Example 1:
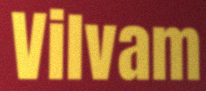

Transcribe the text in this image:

Vilvam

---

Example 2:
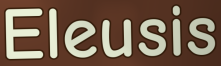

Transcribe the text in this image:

Eleusis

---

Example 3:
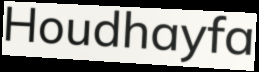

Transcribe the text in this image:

Houdhayfa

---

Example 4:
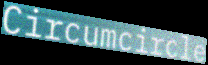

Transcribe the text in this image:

Circumcircle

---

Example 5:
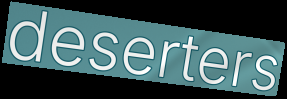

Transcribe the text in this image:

deserters